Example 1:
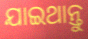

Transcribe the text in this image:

ଯାଇଥାନ୍ତୁ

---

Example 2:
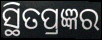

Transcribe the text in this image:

ସ୍ଥିତପ୍ରଜ୍ଞର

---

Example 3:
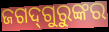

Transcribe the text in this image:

ଜଗଦ୍‌ଗୁରୁଙ୍କର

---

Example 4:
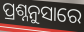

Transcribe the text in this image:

ପ୍ରଶ୍ନନୁସାରେ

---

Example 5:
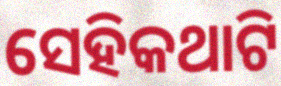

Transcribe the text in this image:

ସେହିକଥାଟି